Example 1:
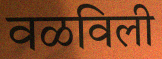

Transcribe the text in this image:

वळविली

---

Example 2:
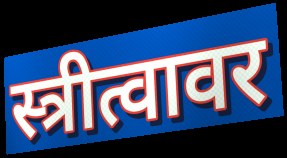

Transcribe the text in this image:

स्त्रीत्वावर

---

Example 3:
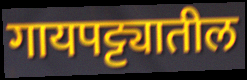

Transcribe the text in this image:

गायपट्ट्यातील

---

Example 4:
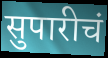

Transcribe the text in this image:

सुपारीचं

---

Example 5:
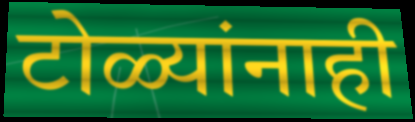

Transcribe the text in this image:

टोळ्यांनाही